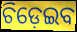
ଚିଡ଼େଇବ